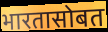
भारतासोबत